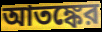
আতঙ্কের